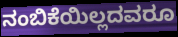
ನಂಬಿಕೆಯಿಲ್ಲದವರೂ